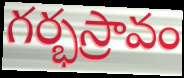
గర్భస్రావం